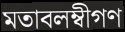
মতাবলম্বীগণ